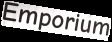
Emporium